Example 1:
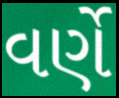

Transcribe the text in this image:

વર્ણે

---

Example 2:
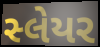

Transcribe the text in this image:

સ્લેયર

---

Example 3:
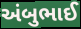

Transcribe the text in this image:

અંબુભાઈ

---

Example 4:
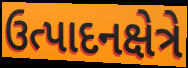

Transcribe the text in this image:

ઉત્પાદનક્ષેત્રે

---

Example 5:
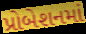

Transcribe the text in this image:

પ્રોબેશનમાં